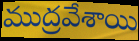
ముద్రవేశాయి